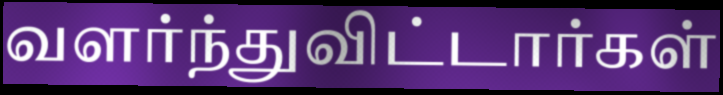
வளர்ந்துவிட்டார்கள்